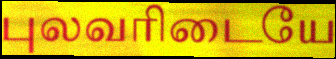
புலவரிடையே